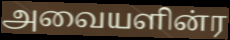
அவையளின்ர